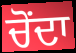
ਚੋਂਦਾ